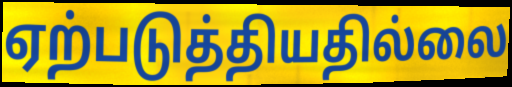
ஏற்படுத்தியதில்லை